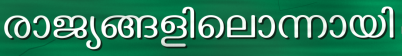
രാജ്യങ്ങളിലൊന്നായി